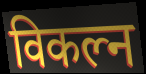
विकल्न